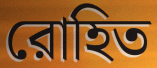
রোহিত